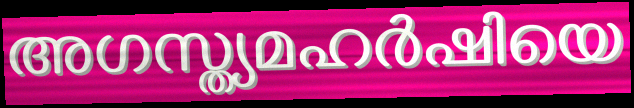
അഗസ്ത്യമഹർഷിയെ